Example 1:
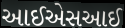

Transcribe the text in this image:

આઈએસઆઈ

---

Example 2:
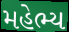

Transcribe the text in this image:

મહેભ્ય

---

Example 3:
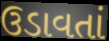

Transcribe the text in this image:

ઉડાવતાં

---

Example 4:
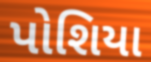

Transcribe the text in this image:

પોશિયા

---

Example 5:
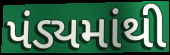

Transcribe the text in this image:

પંડ્યમાંથી